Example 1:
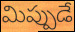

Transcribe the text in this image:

మిప్పుడే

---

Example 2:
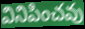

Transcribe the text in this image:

వినిపించవు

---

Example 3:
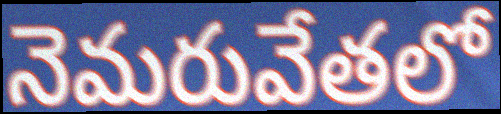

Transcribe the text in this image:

నెమరువేతలో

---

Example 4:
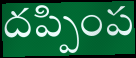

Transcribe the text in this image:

దప్పింప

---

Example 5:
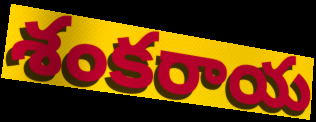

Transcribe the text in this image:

శంకరాయ